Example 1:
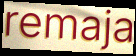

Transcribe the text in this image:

remaja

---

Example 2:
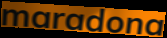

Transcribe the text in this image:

maradona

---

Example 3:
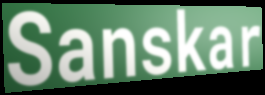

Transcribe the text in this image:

Sanskar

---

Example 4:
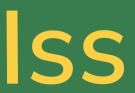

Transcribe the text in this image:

Iss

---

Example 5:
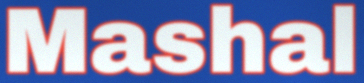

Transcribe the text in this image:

Mashal